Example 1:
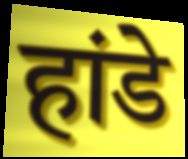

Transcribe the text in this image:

हांडे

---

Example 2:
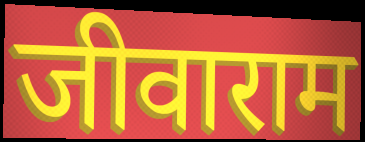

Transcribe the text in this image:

जीवाराम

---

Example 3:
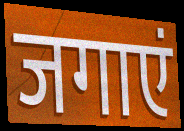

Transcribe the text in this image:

जगाएं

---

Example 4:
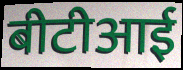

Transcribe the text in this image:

बीटीआई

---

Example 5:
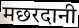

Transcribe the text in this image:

मछरदानी